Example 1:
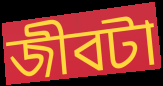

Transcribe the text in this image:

জীবটা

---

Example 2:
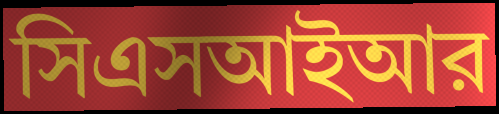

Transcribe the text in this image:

সিএসআইআর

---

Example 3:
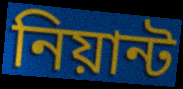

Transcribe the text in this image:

নিয়ান্ট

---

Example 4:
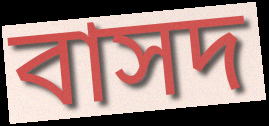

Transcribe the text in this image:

বাসদ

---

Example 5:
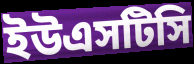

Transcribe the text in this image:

ইউএসটিসি